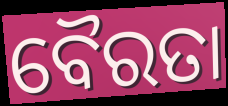
ବୈରତା